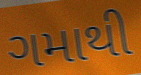
ગમાથી